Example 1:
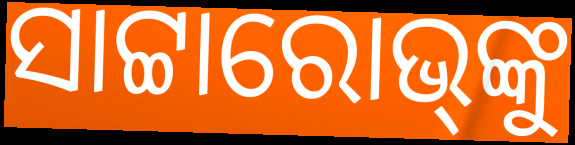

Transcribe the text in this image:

ସାଟ୍ଟାରୋଭ୍‌ଙ୍କୁ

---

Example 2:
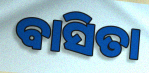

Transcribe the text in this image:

ବାସିତା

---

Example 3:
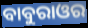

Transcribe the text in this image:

ବାବୁରାଓର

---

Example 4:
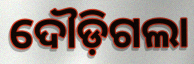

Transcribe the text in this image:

ଦୌଡ଼ିଗଲା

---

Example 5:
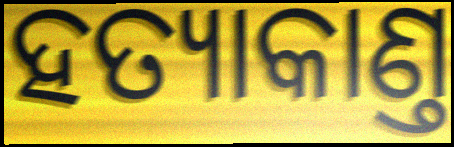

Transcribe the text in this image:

ହତ୍ୟାକାଣ୍ତ